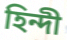
হিন্দী